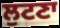
ਲੁਟਣਾ